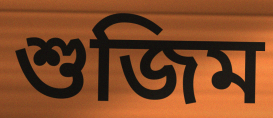
শুজিম